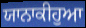
ਯਾਨਾਕੀਹੁਆ